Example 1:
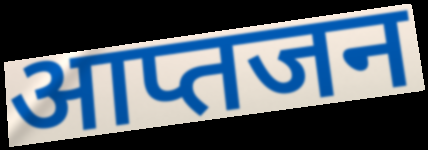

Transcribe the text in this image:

आप्तजन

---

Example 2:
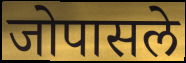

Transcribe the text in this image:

जोपासले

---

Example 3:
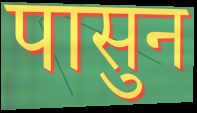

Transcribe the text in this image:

पासुन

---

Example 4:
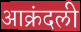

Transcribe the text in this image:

आक्रंदली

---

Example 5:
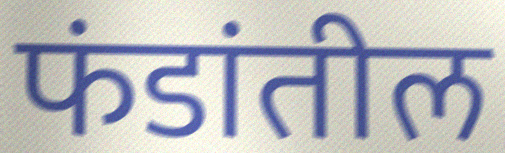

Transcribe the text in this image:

फंडांतील